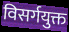
विसर्गयुक्त